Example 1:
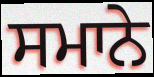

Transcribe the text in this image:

ਸਮਾਨੇ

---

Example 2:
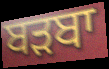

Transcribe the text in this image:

ਬੜਬਾ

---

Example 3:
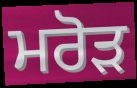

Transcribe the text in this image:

ਮਰੋੜ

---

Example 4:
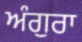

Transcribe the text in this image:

ਅੰਗੁਰਾ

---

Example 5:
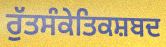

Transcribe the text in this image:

ਰੁੱਤਸੰਕੇਤਿਕਸ਼ਬਦ